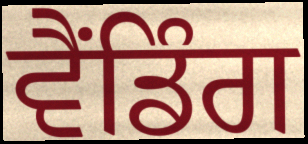
ਵੈਂਡਿੰਗ